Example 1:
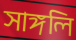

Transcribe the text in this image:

সাঙ্গলি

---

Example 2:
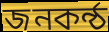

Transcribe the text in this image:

জনকন্ঠ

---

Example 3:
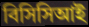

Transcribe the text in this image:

বিসিসিআই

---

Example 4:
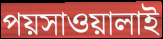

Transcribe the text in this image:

পয়সাওয়ালাই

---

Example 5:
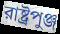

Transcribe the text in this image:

রাষ্ট্রপুঞ্জ